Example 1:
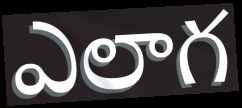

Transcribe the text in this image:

ఎలాగ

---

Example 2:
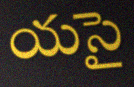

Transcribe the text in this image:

యసై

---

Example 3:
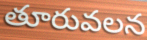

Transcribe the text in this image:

తూరువలన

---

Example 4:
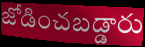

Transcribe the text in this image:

జోడించబడ్డారు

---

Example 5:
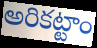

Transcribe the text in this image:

అరికట్టాం